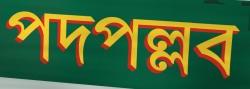
পদপল্লব